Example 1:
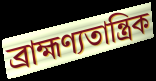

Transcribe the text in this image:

ব্রাহ্মণ্যতান্ত্রিক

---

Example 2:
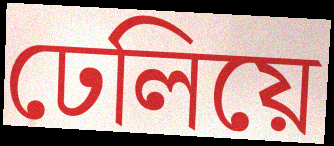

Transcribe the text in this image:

ঢেলিয়ে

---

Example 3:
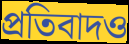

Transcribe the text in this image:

প্রতিবাদও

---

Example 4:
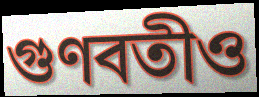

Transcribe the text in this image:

গুণবতীও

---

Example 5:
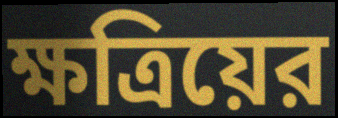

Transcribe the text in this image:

ক্ষত্রিয়ের